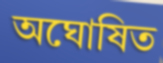
অঘোষিত